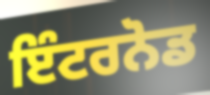
ਇੰਟਰਨੋਡ